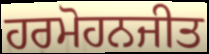
ਹਰਮੋਹਨਜੀਤ